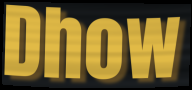
Dhow